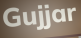
Gujjar